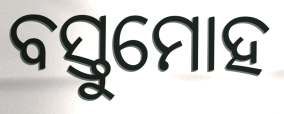
ବସ୍ତୁମୋହ